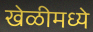
खेळीमध्ये